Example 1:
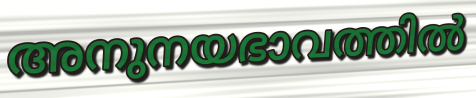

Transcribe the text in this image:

അനുനയഭാവത്തിൽ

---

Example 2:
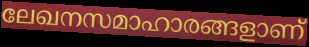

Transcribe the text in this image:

ലേഖനസമാഹാരങ്ങളാണ്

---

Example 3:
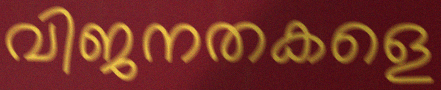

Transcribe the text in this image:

വിജനതകളെ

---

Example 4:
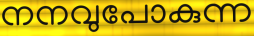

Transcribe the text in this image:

നനവുപോകുന്ന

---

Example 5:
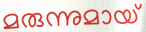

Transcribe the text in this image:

മരുന്നുമായ്